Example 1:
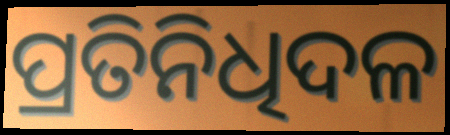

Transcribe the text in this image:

ପ୍ରତିନିଧିଦଳ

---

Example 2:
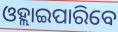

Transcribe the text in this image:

ଓହ୍ଲାଇପାରିବେ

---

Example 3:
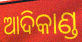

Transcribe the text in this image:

ଆଦିକାଣ୍ଡ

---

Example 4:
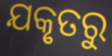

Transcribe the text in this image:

ଯକୃତରୁ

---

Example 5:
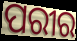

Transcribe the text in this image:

ପରୀର